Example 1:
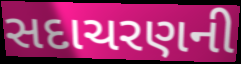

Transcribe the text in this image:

સદાચરણની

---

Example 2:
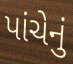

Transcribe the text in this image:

પાંચેનું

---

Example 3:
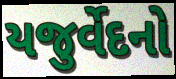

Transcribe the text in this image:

યજુર્વેદનો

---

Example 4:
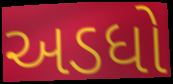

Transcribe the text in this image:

અડધો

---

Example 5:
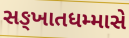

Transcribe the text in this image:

સઙ્ખાતધમ્માસે